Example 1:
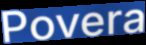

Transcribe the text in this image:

Povera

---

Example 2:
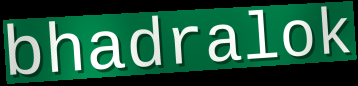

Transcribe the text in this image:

bhadralok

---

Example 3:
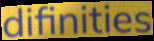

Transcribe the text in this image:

difinities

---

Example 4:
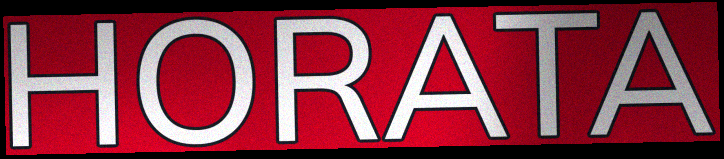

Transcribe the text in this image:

HORATA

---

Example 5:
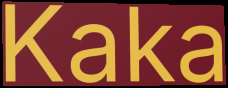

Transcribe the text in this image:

Kaka